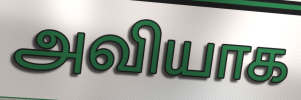
அவியாக